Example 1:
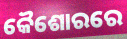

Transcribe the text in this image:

କୈଶୋରରେ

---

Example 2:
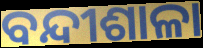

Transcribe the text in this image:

ବନ୍ଦୀଶାଳା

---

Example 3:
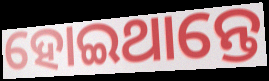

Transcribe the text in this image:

ହୋଇଥାନ୍ତେ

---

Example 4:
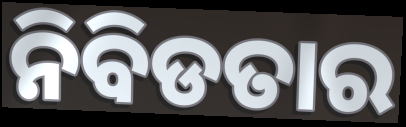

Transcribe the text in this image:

ନିବିଡତାର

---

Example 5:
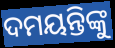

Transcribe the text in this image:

ଦମୟନ୍ତିଙ୍କୁ